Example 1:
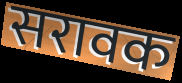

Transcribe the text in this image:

सरावक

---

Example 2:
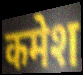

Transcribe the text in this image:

कमेश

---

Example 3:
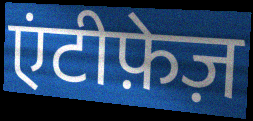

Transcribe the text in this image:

एंटीफ़ेज़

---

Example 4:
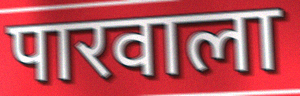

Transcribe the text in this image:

पारवाला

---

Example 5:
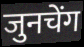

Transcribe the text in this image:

जुनचेंग